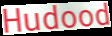
Hudood